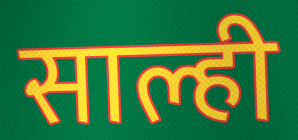
साल्ही